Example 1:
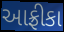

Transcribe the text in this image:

આફ્રીકા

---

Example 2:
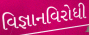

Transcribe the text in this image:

વિજ્ઞાનવિરોધી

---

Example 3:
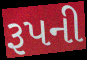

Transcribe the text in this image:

રૂપની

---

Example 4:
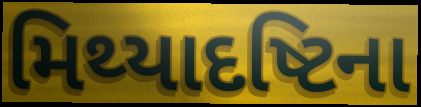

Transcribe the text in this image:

મિથ્યાદષ્ટિના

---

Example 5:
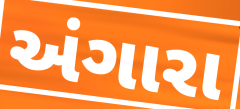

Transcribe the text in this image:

અંગારા